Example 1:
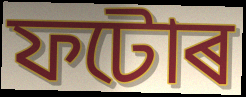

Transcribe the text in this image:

ফটোৰ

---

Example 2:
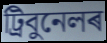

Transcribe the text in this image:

ট্ৰিবুনেলৰ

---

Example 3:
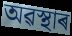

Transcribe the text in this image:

অৱস্থাৰ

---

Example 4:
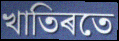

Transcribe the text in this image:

খাতিৰতে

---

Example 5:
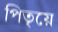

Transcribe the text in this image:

পিতৃয়ে